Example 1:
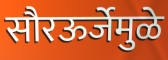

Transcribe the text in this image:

सौरऊर्जेमुळे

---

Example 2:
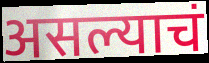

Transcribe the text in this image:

असल्याचं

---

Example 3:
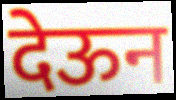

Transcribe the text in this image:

देऊन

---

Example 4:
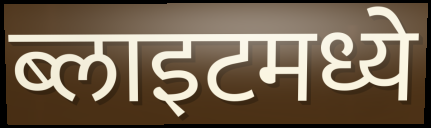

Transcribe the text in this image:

ब्लाइटमध्ये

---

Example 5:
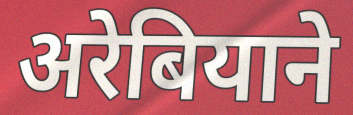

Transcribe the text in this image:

अरेबियाने